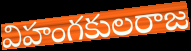
విహంగకులరాజ